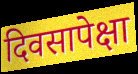
दिवसापेक्षा